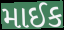
માઈક